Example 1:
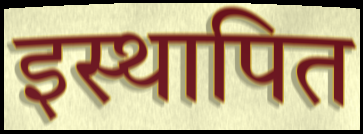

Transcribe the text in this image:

इस्थापित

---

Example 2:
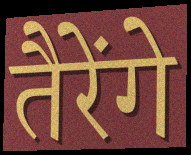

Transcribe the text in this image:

तैरेंगे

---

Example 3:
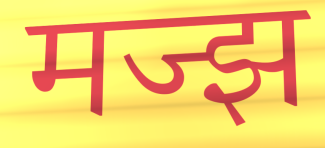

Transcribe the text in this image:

मज्झ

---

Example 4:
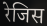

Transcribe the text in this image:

रेजिस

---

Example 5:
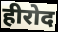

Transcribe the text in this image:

हीरोद